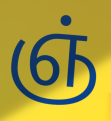
ஞ்